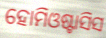
ହୋମିଓଷ୍ଟାସିସ